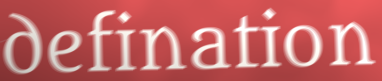
defination